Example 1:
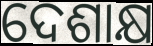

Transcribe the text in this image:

ଦେଶାକ୍ଷ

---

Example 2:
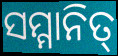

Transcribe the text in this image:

ସମ୍ମାନିତ୍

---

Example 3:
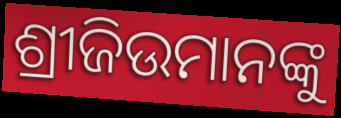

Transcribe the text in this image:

ଶ୍ରୀଜିଉମାନଙ୍କୁ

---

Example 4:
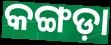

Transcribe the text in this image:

କଙ୍ଗଡ଼ା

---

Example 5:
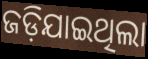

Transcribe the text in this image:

ଜଡ଼ିଯାଇଥିଲା